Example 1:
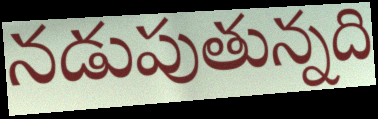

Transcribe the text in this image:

నడుపుతున్నది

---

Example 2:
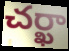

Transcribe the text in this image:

చర్ఖా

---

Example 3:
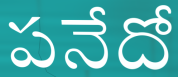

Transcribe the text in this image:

పనేదో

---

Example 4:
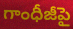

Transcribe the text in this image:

గాంధీజీపై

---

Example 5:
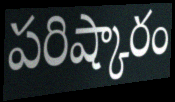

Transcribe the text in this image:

పరిష్కారం